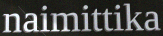
naimittika